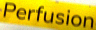
Perfusion